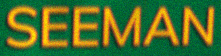
SEEMAN